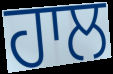
ਹਾਲ